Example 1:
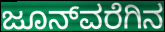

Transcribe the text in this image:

ಜೂನ್‌ವರೆಗಿನ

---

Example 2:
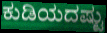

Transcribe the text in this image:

ಕುಡಿಯದಷ್ಟು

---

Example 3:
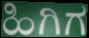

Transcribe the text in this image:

ಹಿಗಿಗ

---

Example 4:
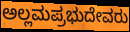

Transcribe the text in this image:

ಅಲ್ಲಮಪ್ರಭುದೇವರು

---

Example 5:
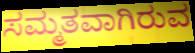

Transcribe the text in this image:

ಸಮ್ಮತವಾಗಿರುವ